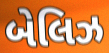
બેલિઝ